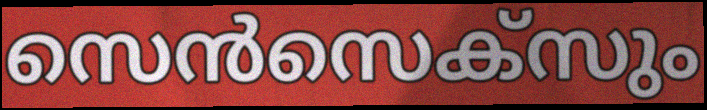
സെൻസെക്സും